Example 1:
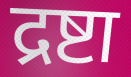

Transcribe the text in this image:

द्रष्टा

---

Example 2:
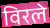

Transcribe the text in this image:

विरले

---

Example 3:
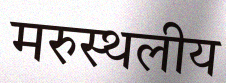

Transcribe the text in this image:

मरुस्थलीय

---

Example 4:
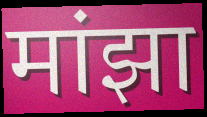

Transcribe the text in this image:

मांझा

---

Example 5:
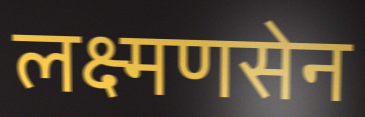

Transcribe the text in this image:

लक्ष्मणसेन